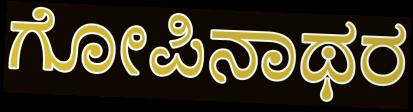
ಗೋಪಿನಾಥರ